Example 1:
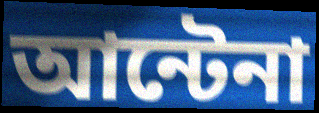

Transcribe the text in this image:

আন্টেনা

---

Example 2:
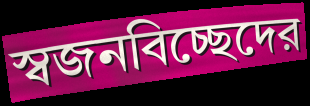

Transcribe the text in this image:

স্বজনবিচ্ছেদের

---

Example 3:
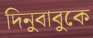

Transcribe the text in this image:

দিনুবাবুকে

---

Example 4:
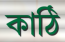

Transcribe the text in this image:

কাঠি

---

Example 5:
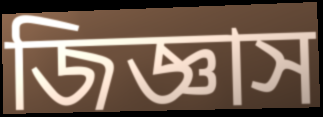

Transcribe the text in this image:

জিজ্ঞাস